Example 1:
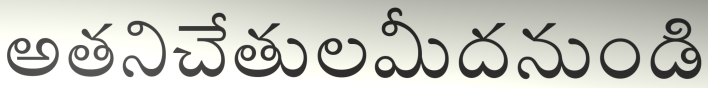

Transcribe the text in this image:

అతనిచేతులమీదనుండి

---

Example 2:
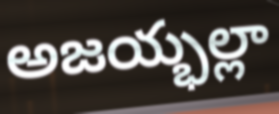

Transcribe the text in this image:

అజయ్భల్లా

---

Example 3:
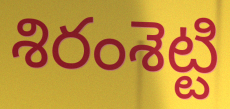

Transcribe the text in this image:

శిరంశెట్టి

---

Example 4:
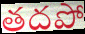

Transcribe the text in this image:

తదపో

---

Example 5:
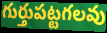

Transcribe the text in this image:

గుర్తుపట్టగలవు